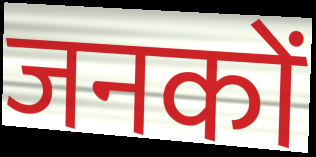
जनकों